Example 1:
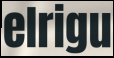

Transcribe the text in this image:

elrigu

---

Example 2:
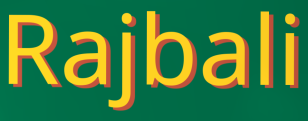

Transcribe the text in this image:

Rajbali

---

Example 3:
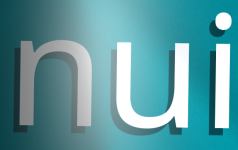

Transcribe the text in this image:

nui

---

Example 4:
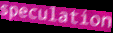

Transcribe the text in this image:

speculation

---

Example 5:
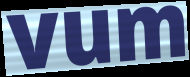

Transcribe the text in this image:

vum